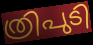
ത്രിപുടി